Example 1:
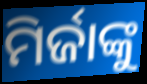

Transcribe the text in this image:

ମିର୍ଜାଙ୍କୁ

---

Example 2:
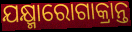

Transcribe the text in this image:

ଯକ୍ଷ୍ମାରୋଗାକ୍ରାନ୍ତ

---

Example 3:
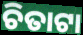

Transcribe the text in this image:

ଚିତାଟା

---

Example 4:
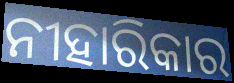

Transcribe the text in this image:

ନୀହାରିକାର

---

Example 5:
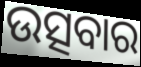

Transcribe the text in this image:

ଉତ୍ସବାର